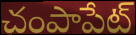
చంపాపేట్